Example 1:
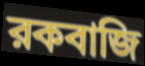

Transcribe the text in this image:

রকবাজি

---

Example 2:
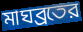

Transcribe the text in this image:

মাঘব্রতের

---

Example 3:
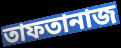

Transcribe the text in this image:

তাফতানাজ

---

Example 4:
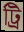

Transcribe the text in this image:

ট্রি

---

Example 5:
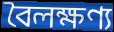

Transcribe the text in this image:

বৈলক্ষণ্য